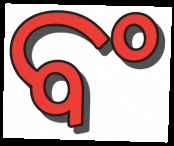
ବଂ